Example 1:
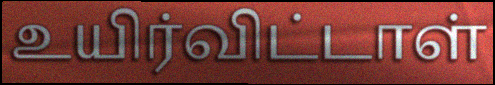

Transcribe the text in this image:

உயிர்விட்டாள்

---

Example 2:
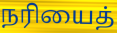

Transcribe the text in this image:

நரியைத்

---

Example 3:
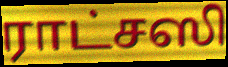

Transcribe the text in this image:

ராட்சஸி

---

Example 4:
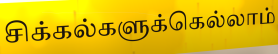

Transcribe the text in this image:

சிக்கல்களுக்கெல்லாம்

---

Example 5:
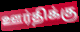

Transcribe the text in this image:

ஊர்திக்கு